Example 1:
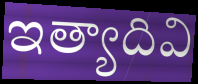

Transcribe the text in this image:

ఇత్యాదివి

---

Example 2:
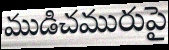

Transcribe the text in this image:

ముడిచమురుపై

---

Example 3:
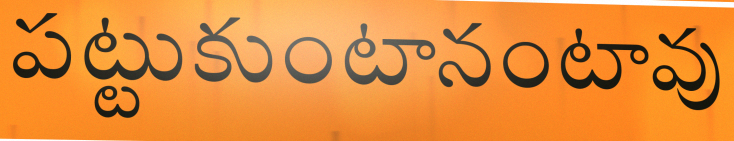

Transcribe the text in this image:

పట్టుకుంటానంటావు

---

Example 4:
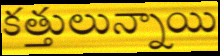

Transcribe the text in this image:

కత్తులున్నాయి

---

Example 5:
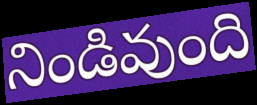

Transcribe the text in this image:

నిండివుంది